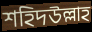
শহিদউল্লাহ